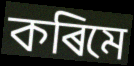
কৰিমে